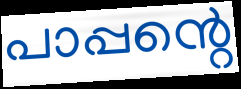
പാപ്പന്റെ